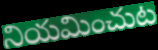
నియమించుట